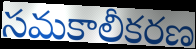
సమకాలీకరణ